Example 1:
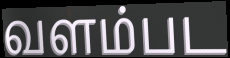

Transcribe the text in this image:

வளம்பட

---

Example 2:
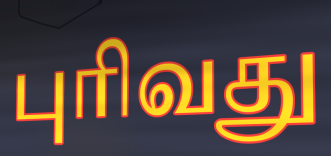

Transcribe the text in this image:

புரிவது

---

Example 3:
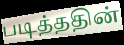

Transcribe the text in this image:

படித்ததின்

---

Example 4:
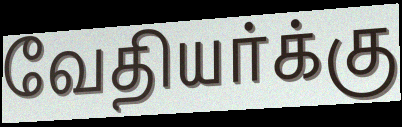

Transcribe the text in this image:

வேதியர்க்கு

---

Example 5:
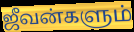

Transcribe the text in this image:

ஜீவன்களும்